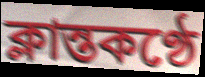
ক্লান্তকণ্ঠে